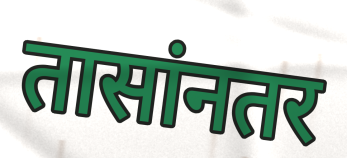
तासांनतर